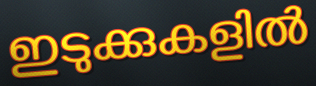
ഇടുക്കുകളിൽ